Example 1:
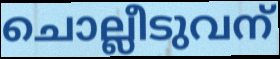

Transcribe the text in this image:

ചൊല്ലീടുവന്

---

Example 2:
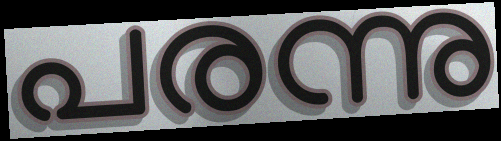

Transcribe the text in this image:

പരന്നു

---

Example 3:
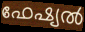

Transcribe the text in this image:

ഫേഷ്യൽ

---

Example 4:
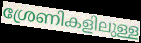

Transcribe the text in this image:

ശ്രേണികളിലുള്ള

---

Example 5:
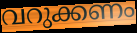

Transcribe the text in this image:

വറുക്കണം